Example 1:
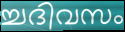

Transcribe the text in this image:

ച്ചദിവസം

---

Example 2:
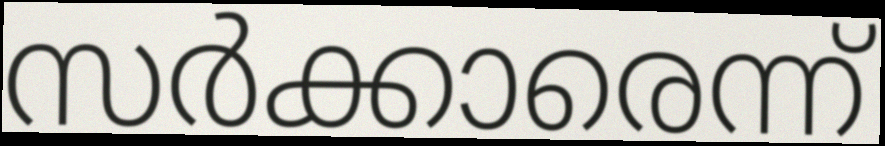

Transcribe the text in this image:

സർക്കാരെന്ന്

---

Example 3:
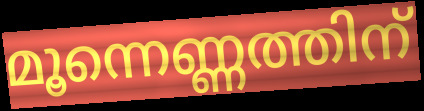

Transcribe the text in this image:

മൂന്നെണ്ണത്തിന്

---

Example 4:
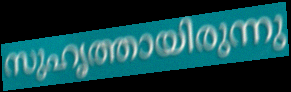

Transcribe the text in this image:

സുഹൃത്തായിരുന്നു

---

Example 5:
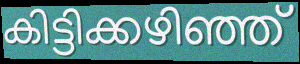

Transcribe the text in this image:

കിട്ടിക്കഴിഞ്ഞ്